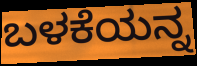
ಬಳಕೆಯನ್ನ